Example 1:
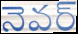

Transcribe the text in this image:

నెవర్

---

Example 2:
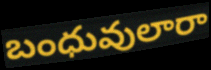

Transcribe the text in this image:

బంధువులారా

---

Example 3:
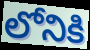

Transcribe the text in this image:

లోనికి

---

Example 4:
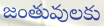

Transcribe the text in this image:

జంతువులకు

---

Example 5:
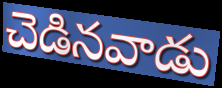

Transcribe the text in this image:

చెడినవాడు